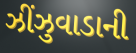
ઝીંઝુવાડાની